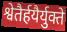
श्वेतैर्हयैर्युक्ते